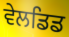
ਵੇਲਡਿਡ